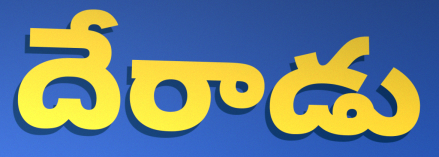
దేరాడు